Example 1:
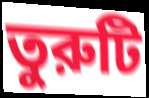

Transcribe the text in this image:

তুরুটি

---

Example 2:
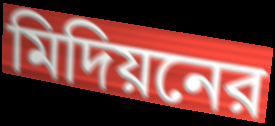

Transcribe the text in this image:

মিদিয়নের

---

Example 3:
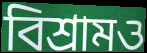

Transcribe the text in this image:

বিশ্রামও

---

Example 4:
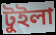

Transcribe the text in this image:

টুইলা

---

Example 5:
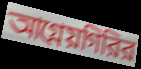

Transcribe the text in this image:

আগ্নেয়গিরির